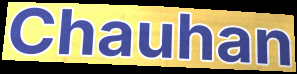
Chauhan